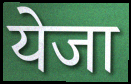
येजा